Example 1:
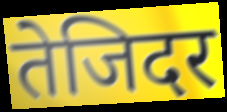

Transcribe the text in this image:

तेजिदर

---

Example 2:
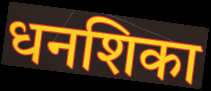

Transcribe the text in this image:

धनशिका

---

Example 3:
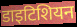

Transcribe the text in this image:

डाइटिशियन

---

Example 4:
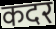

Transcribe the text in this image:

कदर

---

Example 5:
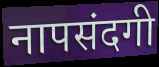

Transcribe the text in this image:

नापसंदगी